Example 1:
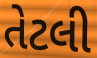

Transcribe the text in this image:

તેટલી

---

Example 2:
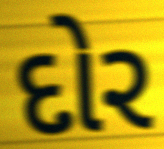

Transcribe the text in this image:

દોર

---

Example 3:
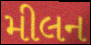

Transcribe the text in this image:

મીલન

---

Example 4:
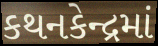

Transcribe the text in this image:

કથનકેન્દ્રમાં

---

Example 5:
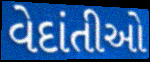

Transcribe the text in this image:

વેદાંતીઓ